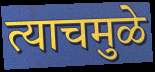
त्याचमुळे